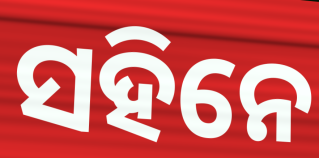
ସହିନେ